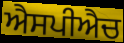
ਐਸਪੀਐਚ